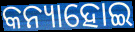
କନ୍ୟାହୋଇ